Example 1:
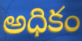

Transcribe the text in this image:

అధికం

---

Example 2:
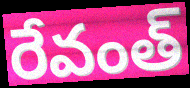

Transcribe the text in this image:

రేవంత్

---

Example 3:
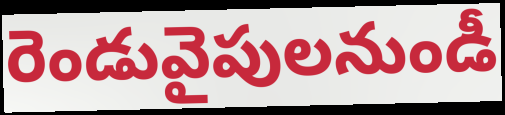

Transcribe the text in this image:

రెండువైపులనుండీ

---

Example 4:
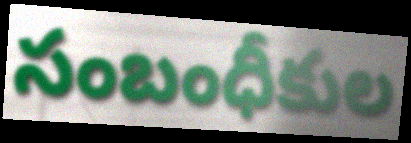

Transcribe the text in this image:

సంబంధీకుల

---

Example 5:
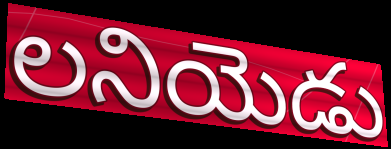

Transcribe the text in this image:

లనియెడు